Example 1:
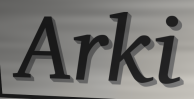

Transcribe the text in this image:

Arki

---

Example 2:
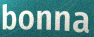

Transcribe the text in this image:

bonna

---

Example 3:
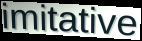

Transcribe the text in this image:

imitative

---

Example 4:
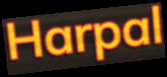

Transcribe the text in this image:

Harpal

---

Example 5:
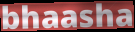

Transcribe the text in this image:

bhaasha